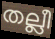
തല്ലീ